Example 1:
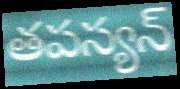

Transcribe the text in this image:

తపస్యన్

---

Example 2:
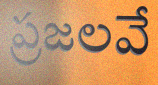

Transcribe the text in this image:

ప్రజలవే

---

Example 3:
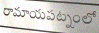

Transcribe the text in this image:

రామాయపట్నంలో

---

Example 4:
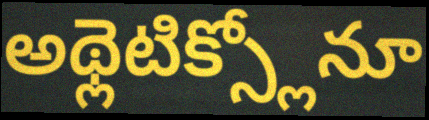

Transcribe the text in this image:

అథ్లెటిక్స్లోనూ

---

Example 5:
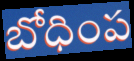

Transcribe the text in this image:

బోధింప